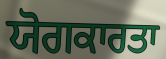
ਯੋਗਕਾਰਤਾ